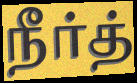
நீர்த்